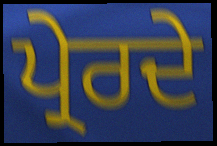
ਪ੍ਰੇਰਦੇ